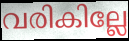
വരികില്ലേ